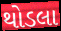
થોડલા